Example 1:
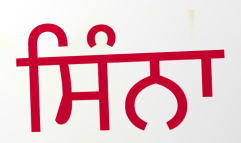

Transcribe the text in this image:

ਸਿੰਨਾ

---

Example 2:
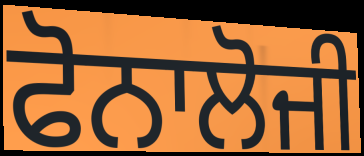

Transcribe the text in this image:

ਫੋਨਾਲੋਜੀ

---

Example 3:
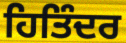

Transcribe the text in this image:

ਹਿਤਿੰਦਰ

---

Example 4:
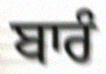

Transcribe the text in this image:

ਬਾਰੰ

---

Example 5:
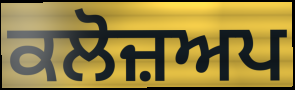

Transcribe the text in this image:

ਕਲੋਜ਼ਅਪ